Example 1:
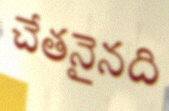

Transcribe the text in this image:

చేతనైనది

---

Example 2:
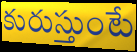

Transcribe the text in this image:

కురుస్తుంటే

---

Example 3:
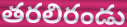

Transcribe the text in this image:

తరలిరండు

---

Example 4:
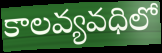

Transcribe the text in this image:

కాలవ్యవధిలో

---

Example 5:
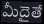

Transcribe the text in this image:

మీదైతే